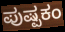
ಪುಷ್ಪಕಂ